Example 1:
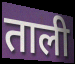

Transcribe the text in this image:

ताली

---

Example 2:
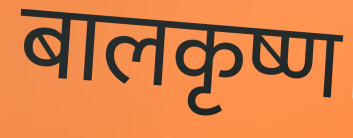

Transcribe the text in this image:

बालकृष्ण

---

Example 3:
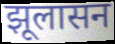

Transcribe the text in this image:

झूलासन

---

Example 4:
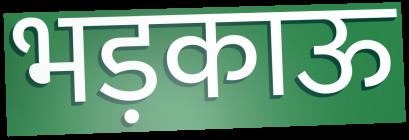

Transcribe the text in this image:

भड़काऊ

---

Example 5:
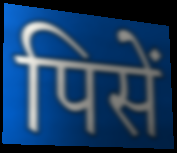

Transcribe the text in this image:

पिसें